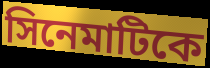
সিনেমাটিকে